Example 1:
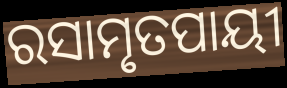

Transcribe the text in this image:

ରସାମୃତପାୟୀ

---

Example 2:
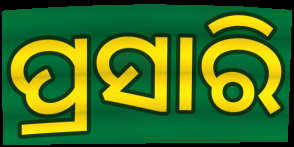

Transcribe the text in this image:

ପ୍ରସାରି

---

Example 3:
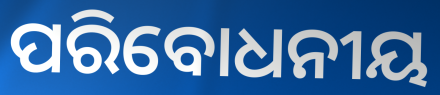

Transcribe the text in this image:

ପରିବୋଧନୀୟ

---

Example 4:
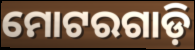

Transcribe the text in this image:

ମୋଟରଗାଡ଼ି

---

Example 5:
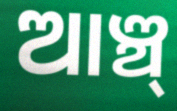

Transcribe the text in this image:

ଆଞ୍ଚ୍